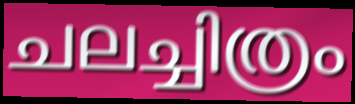
ചലച്ചിത്രം